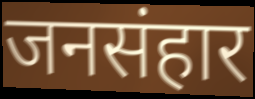
जनसंहार